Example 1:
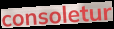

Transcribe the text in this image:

consoletur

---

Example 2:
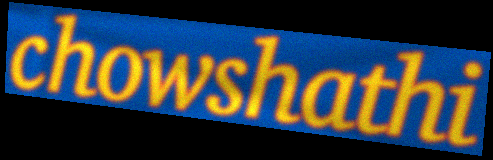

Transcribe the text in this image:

chowshathi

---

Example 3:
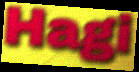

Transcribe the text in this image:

Hagi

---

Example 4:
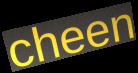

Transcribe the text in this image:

cheen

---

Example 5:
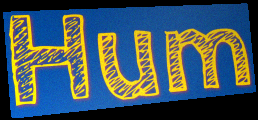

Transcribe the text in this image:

Hum